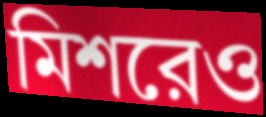
মিশরেও